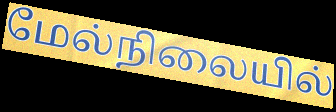
மேல்நிலையில்